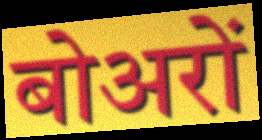
बोअरों